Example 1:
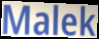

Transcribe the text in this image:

Malek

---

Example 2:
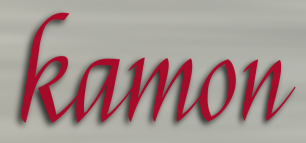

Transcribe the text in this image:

kamon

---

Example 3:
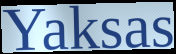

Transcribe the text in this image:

Yaksas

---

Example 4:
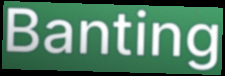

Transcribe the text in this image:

Banting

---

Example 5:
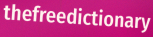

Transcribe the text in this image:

thefreedictionary